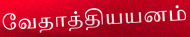
வேதாத்தியயனம்